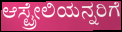
ಆಸ್ಟ್ರೇಲಿಯನ್ನರಿಗೆ